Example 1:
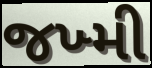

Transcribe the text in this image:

જખ્મી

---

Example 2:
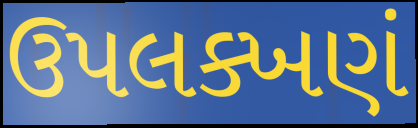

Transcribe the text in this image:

ઉપલક્ખણં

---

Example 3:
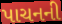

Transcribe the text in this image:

પાચનની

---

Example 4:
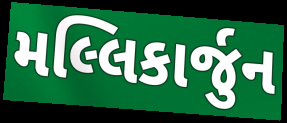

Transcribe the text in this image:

મલ્લિકાર્જુન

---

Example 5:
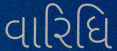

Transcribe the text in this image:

વારિધિ